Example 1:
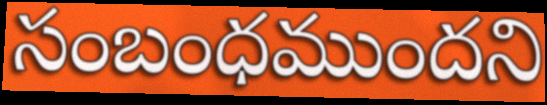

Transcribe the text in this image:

సంబంధముందని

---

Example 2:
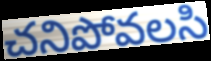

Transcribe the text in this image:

చనిపోవలసి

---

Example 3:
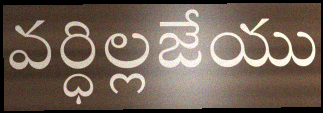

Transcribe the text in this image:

వర్ధిల్లజేయు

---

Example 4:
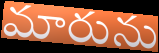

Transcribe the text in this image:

మారును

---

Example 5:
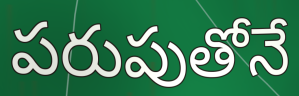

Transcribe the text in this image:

పరుపుతోనే